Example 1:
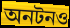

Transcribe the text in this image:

অনটনও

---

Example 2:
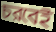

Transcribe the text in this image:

চরবেই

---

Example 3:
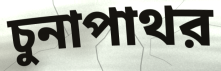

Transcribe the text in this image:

চুনাপাথর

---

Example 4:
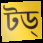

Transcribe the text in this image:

টড্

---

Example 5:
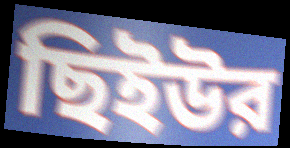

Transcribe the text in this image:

ছিইউর